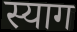
स्याग